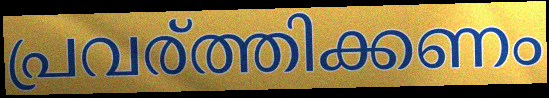
പ്രവര്ത്തിക്കണം